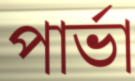
পার্ভা